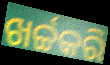
ଖର୍ଚ୍ଚକରି